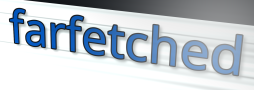
farfetched